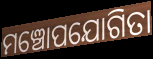
ମଞ୍ଚୋପଯୋଗିତା